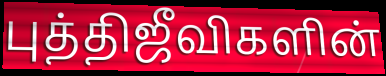
புத்திஜீவிகளின்